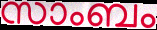
സാംബം